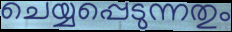
ചെയ്യപ്പെടുന്നതും